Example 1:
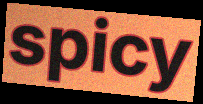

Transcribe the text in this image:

spicy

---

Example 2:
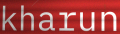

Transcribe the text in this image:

kharun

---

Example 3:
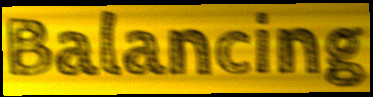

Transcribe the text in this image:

Balancing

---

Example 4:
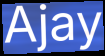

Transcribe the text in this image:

Ajay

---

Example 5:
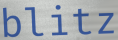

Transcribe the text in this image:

blitz